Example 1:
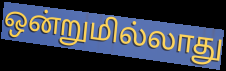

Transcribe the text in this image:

ஒன்றுமில்லாது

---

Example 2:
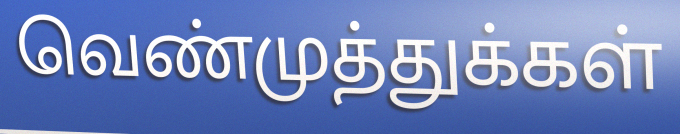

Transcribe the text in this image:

வெண்முத்துக்கள்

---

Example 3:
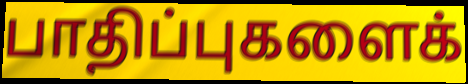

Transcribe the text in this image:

பாதிப்புகளைக்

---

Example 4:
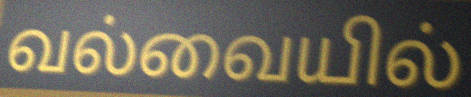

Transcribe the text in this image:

வல்வையில்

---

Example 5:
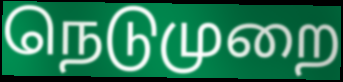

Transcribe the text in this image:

நெடுமுறை